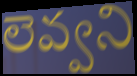
లెవ్వని